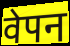
वेपन